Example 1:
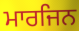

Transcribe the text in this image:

ਮਾਰਜਿਨ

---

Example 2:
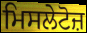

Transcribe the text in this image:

ਮਿਸਲੇਟੋਜ਼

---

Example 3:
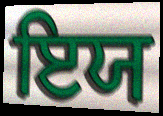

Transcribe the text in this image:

ਇਯ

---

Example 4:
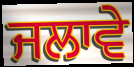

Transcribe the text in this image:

ਜਲਾਵੇ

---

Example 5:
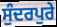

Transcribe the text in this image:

ਸੁੰਦਰਪੁਰੇ